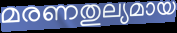
മരണതുല്യമായ